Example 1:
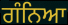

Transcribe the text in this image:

ਗੰਨਿਆ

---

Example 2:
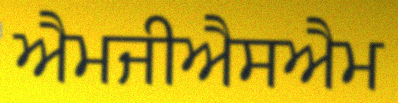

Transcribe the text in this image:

ਐਮਜੀਐਸਐਮ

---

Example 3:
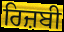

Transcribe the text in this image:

ਰਿਜ਼ਬੀ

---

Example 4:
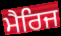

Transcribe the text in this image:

ਮੈਰਿਜ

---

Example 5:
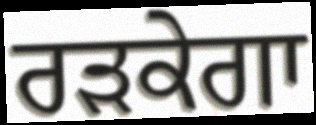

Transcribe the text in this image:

ਰੜਕੇਗਾ